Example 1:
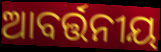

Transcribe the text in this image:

ଆବର୍ତ୍ତନୀୟ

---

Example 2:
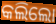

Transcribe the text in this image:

କଲିଲୋ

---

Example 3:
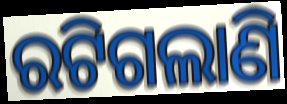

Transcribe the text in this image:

ରଟିଗଲାଣି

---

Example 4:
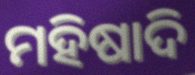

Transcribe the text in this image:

ମହିଷାଦି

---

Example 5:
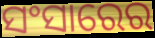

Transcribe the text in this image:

ସଂସାରେର